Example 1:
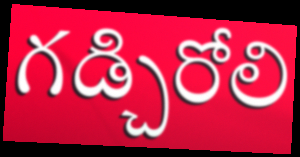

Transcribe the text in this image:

గడ్చిరోలి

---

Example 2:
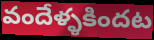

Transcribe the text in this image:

వందేళ్ళకిందట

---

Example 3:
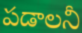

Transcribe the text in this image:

పడాలనీ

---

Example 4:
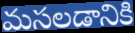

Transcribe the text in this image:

మసలడానికి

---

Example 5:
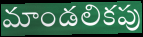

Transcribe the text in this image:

మాండలికపు